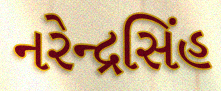
નરેન્દ્રસિંહ